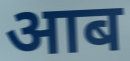
आब